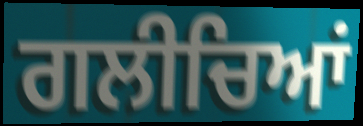
ਗਲੀਚਿਆਂ